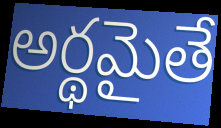
అర్థమైతే